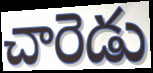
చారెడు